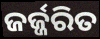
ଜର୍ଜ୍ଜରିତ